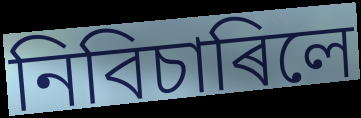
নিবিচাৰিলে